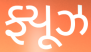
ફ્યૂઝ